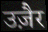
उज़ैर